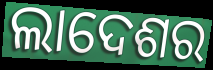
ଲାଦେଶର